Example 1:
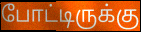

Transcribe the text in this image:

போட்டிருக்கு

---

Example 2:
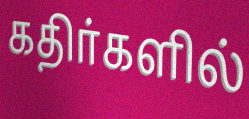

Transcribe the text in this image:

கதிர்களில்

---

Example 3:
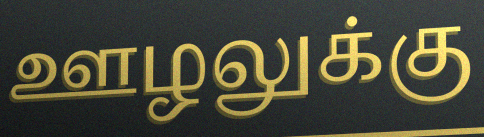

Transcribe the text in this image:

ஊழலுக்கு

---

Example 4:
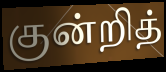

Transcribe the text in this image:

குன்றித்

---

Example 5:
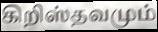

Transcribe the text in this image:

கிறிஸ்தவமும்